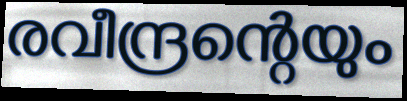
രവീന്ദ്രന്റെയും